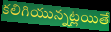
కలిగియున్నట్లయితే